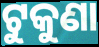
ଟୁକୁଣା